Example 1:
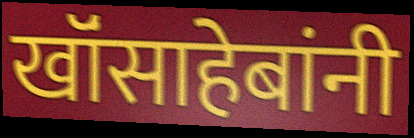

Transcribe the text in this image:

खॉंसाहेबांनी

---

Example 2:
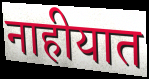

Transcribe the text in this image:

नाहीयात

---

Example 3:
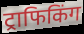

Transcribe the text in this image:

ट्राफिकिंग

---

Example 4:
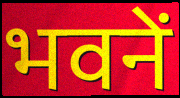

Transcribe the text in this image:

भवनें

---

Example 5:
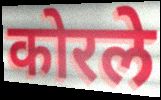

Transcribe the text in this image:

कोरले